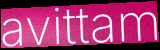
avittam